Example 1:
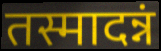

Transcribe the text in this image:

तस्मादन्नं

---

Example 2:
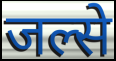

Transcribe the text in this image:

जल्से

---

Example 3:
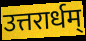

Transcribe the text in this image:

उत्तरार्धम्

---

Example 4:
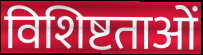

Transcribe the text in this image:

विशिष्टताओं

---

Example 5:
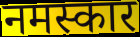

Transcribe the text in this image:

नमस्कार